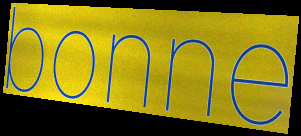
bonne